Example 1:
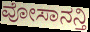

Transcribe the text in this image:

ವೋಸಾನನ್ತಿ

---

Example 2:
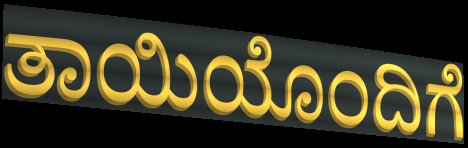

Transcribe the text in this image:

ತಾಯಿಯೊಂದಿಗೆ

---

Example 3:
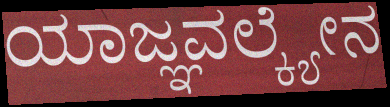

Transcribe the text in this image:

ಯಾಜ್ಞವಲ್ಕ್ಯೇನ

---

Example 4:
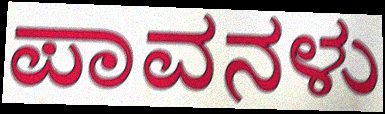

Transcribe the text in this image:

ಪಾವನಳು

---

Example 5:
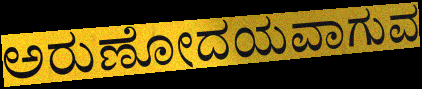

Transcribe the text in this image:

ಅರುಣೋದಯವಾಗುವ